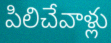
పిలిచేవాళ్లు